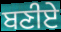
ਬਣੀਏ